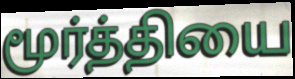
மூர்த்தியை